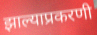
झाल्याप्रकरणी